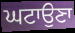
ਘਟਾਉਣਾ